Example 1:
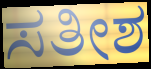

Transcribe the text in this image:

ಸತೀಶ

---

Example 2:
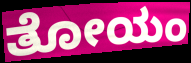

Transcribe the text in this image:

ತೋಯಂ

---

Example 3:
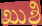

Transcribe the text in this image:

ಖುಶಿ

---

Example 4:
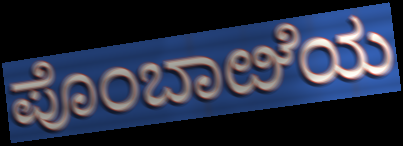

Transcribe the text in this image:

ಪೊಂಬಾೞೆಯ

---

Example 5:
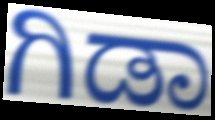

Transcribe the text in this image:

ಗಿಡಾ